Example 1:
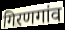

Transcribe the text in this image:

गिरणगांव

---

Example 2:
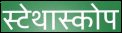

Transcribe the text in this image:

स्टेथास्कोप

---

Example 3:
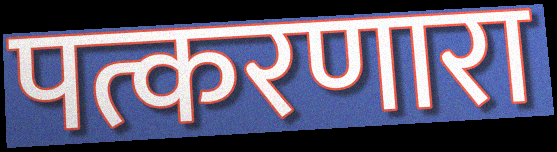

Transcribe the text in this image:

पत्करणारा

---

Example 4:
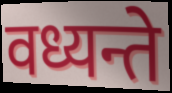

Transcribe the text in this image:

वध्यन्ते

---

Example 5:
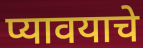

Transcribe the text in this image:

प्यावयाचे